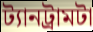
ট্যানট্রামটা